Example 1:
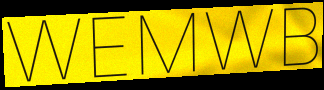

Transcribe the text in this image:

WEMWB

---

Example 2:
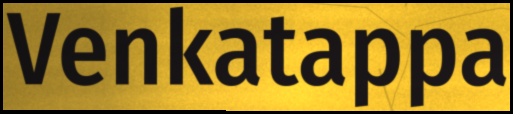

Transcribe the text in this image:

Venkatappa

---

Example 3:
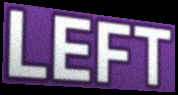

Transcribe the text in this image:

LEFT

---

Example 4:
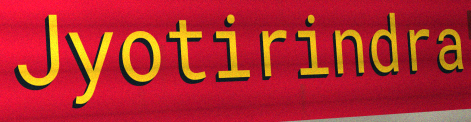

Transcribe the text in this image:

Jyotirindra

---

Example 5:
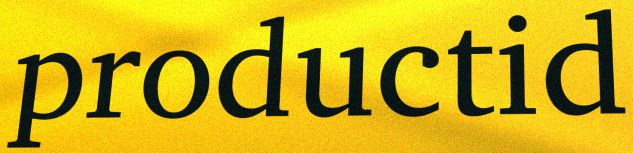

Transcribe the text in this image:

productid